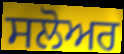
ਸਲੋਅਰ